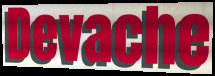
Devache